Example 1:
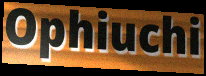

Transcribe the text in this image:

Ophiuchi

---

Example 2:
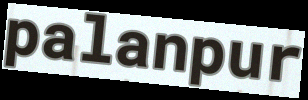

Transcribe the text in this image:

palanpur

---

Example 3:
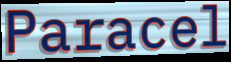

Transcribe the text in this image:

Paracel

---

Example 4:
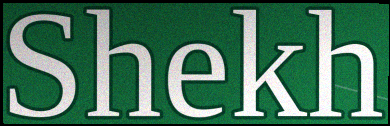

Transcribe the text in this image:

Shekh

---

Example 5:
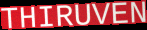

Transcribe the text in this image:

THIRUVEN